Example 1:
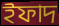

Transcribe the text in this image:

ইফাদ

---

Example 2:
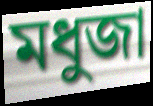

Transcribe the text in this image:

মধুজা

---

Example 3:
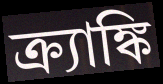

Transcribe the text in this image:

ক্র্যাঙ্কি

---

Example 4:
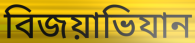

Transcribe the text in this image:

বিজয়াভিযান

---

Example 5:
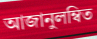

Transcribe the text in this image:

আজানুলম্বিত